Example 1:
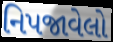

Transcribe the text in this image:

નિપજાવેલો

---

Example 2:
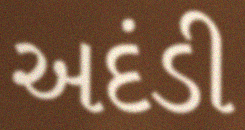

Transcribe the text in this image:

અદંડી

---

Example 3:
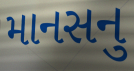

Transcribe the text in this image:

માનસનુ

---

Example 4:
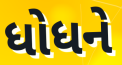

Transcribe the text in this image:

ધોધને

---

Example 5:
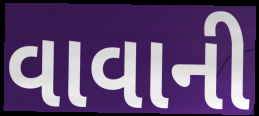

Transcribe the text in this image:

વાવાની